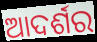
ଆଦର୍ଶର